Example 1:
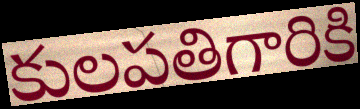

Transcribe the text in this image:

కులపతిగారికి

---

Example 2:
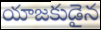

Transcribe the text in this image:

యాజకుడైన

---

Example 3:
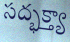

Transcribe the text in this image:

సద్భక్త్యా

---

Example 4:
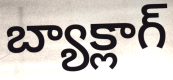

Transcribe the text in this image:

బ్యాక్లాగ్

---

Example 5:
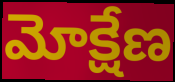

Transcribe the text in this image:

మోక్షేణ